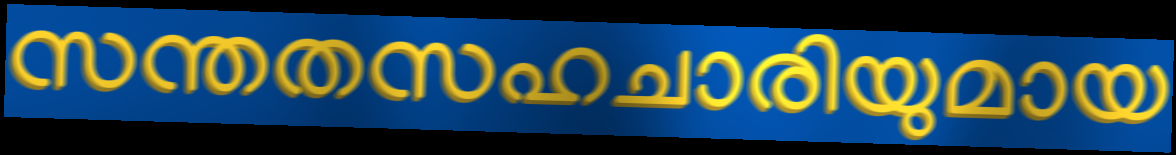
സന്തതസഹചാരിയുമായ